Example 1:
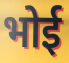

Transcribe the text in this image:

भोई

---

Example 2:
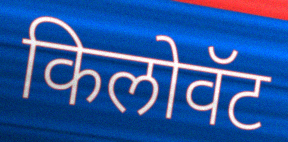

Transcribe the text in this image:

किलोवॅट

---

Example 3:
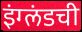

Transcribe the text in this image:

इंग्लंडची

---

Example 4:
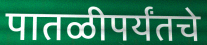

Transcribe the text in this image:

पातळीपर्यंतचे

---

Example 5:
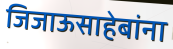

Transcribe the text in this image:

जिजाऊसाहेबांना